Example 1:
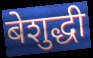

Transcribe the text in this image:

बेशुद्धी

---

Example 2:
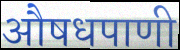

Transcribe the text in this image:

औषधपाणी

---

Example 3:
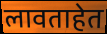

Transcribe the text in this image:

लावताहेत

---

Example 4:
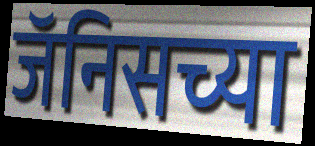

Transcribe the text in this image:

जॅनिसच्या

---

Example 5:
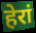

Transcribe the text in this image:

हेरां